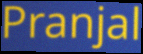
Pranjal